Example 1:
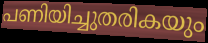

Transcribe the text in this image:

പണിയിച്ചുതരികയും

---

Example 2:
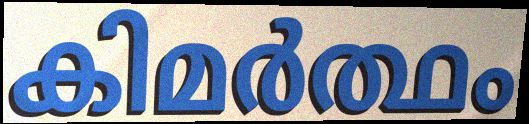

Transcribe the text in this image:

കിമർത്ഥം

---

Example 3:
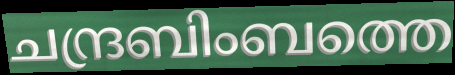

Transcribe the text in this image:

ചന്ദ്രബിംബത്തെ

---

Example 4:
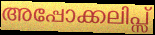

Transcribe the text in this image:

അപ്പോക്കലിപ്സ്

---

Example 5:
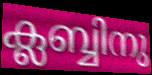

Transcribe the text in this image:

ക്ലബ്ബിനു